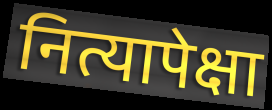
नित्यापेक्षा